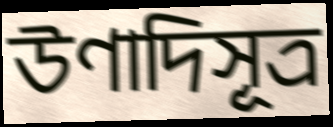
উণাদিসূত্র